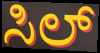
ಸಿಲ್